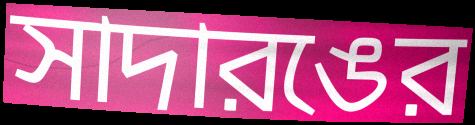
সাদারঙের